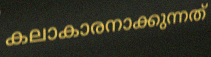
കലാകാരനാക്കുന്നത്